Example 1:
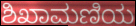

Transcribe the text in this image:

ಶಿಖಾಮಣಿಯ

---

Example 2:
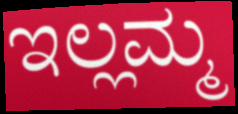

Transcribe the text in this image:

ಇಲ್ಲಮ್ಮ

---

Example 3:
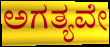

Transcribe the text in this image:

ಅಗತ್ಯವೇ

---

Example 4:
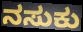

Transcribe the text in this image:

ನಸುಕು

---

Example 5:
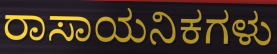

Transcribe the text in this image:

ರಾಸಾಯನಿಕಗಳು